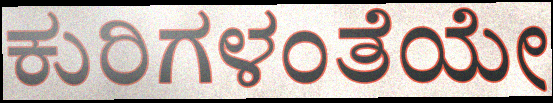
ಕುರಿಗಳಂತೆಯೇ